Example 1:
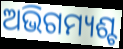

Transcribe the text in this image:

ଅଭିଗମ୍ୟଶ୍ଚ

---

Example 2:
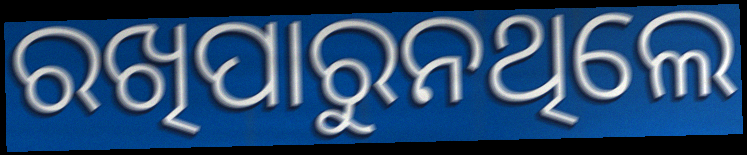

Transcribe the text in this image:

ରଖିପାରୁନଥିଲେ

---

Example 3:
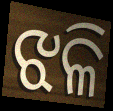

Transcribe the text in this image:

ଝଳି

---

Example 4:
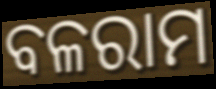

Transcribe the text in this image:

ବଳରାମ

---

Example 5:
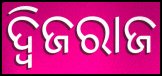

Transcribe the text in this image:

ଦ୍ୱିଜରାଜ